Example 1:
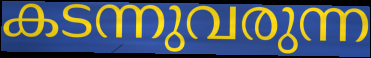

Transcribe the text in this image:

കടന്നുവരുന്ന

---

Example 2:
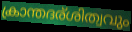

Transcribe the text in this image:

ക്രാന്തദര്ശിത്വവും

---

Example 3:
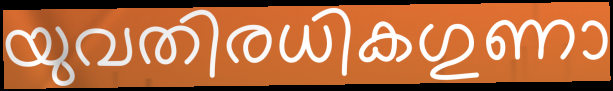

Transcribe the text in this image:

യുവതിരധികഗുണാ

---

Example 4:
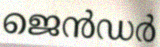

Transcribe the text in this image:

ജെൻഡർ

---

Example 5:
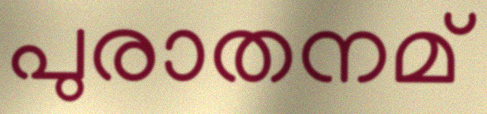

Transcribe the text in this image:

പുരാതനമ്